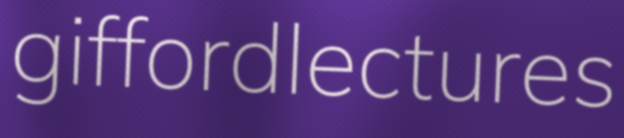
giffordlectures